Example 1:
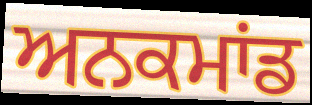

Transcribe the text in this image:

ਅਨਕਮਾਂਡ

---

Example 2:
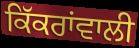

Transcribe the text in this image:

ਕਿੱਕਰਾਂਵਾਲੀ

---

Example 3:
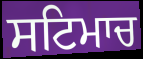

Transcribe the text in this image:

ਸਟਿਮਾਚ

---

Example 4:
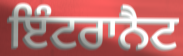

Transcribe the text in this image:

ਇੰਟਰਾਨੈਟ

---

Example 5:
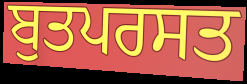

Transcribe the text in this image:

ਬੁਤਪਰਸਤ